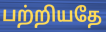
பற்றியதே